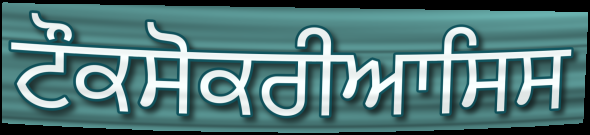
ਟੌਕਸੋਕਰੀਆਸਿਸ